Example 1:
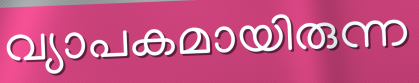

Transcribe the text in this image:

വ്യാപകമായിരുന്ന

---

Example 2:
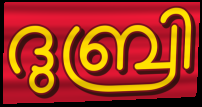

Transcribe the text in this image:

ദുബ്രി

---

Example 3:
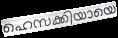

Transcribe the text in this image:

ഹെസക്കിയായെ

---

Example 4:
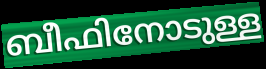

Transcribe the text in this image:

ബീഫിനോടുള്ള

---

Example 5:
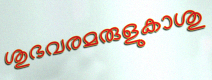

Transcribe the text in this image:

ശുഭവരമരുളുകാശു